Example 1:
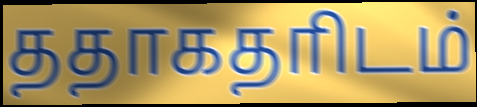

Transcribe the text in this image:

ததாகதரிடம்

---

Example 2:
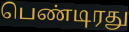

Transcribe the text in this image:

பெண்டிரது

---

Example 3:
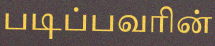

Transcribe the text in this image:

படிப்பவரின்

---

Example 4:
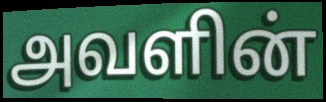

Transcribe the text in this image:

அவளின்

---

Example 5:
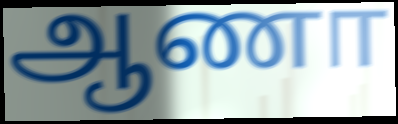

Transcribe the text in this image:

ஆணா